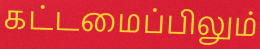
கட்டமைப்பிலும்